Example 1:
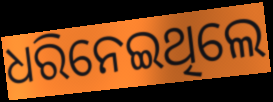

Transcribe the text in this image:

ଧରିନେଇଥିଲେ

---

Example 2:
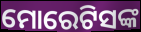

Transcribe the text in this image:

ମୋରେଟିସଙ୍କ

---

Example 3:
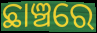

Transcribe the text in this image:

ଛାଞ୍ଚରେ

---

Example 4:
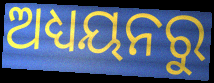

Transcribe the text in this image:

ଅଧ୍ୟୟନରୁ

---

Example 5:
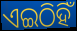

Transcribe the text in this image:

ଏଇଠିହିଁ